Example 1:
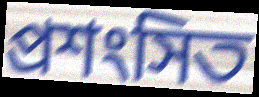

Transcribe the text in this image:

প্রশংসিত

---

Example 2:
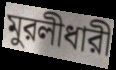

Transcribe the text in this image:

মুরলীধারী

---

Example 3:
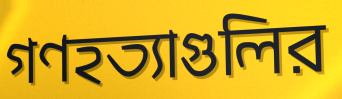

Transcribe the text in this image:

গণহত্যাগুলির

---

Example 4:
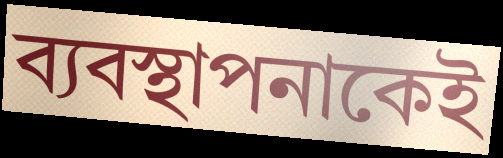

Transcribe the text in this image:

ব্যবস্থাপনাকেই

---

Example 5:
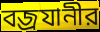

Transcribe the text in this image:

বজ্রযানীর